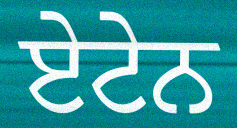
ਏਟੇਨ